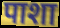
पाशा